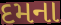
દમના